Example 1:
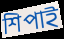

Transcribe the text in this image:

শিপাই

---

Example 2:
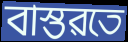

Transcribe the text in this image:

বাস্তৱতে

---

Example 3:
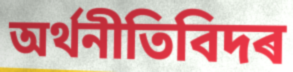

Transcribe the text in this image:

অৰ্থনীতিবিদৰ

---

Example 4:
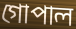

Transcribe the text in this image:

গোপাল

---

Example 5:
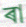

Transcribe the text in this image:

ৰা